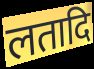
लतादि